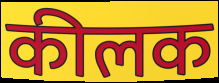
कीलक